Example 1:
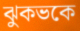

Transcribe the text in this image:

ঝুকভকে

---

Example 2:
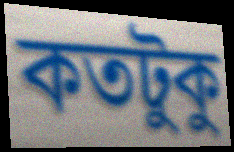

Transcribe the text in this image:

কতটুকু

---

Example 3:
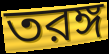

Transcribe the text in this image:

তরঙ্গ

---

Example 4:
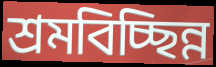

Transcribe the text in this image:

শ্রমবিচ্ছিন্ন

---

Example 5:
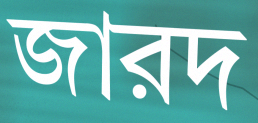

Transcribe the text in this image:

জারদ